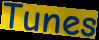
Tunes